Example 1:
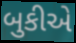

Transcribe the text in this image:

બુકીએ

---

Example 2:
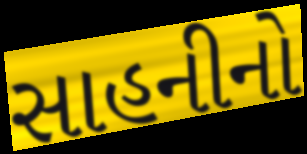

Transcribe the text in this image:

સાહનીનો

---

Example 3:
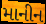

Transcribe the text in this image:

માનીન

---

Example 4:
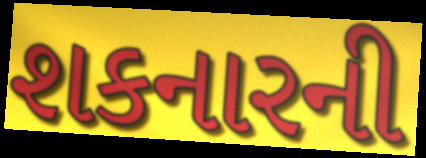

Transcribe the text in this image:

શકનારની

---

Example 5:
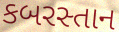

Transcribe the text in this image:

કબરસ્તાન